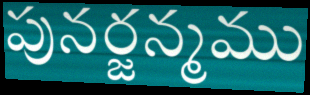
పునర్జన్మము